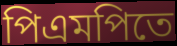
পিএমপিতে